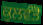
ਕੁਲਵੰਤੋ